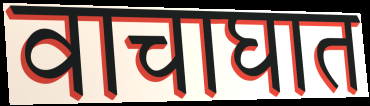
वाचाघात